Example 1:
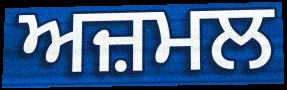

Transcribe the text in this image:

ਅਜ਼ਮਲ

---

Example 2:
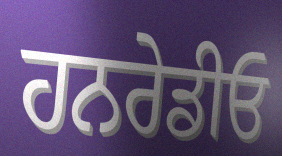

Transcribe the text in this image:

ਹਨਰੇਡੀਓ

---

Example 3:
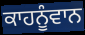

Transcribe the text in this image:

ਕਾਹਨੂੰਵਾਨ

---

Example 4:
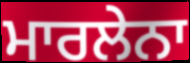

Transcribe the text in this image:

ਮਾਰਲੇਨਾ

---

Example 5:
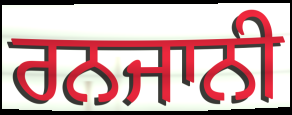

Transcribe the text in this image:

ਰਨਜਾਨੀ